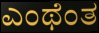
ಎಂಥೆಂತ